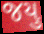
જયુ